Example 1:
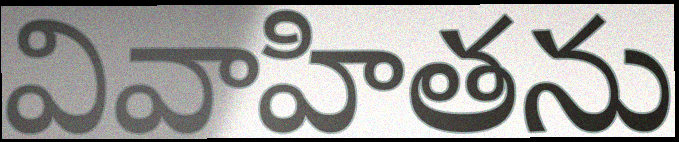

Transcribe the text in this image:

వివాహితను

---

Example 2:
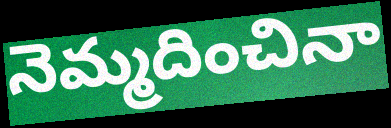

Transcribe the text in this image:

నెమ్మదించినా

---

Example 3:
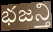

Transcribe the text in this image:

భజన్తి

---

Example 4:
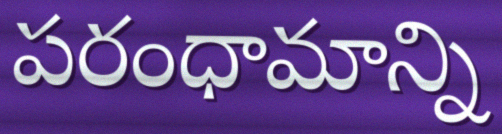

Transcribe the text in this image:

పరంధామాన్ని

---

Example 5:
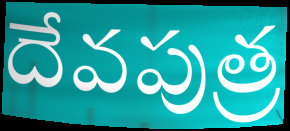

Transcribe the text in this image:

దేవపుత్ర